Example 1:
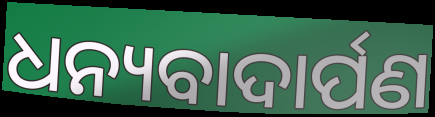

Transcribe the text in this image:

ଧନ୍ୟବାଦାର୍ପଣ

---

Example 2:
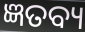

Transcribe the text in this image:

ଜ୍ଞତବ୍ୟ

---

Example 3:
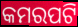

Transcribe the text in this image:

କମରପଟି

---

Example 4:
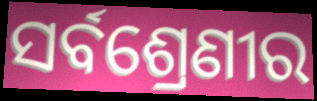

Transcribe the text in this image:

ସର୍ବଶ୍ରେଣୀର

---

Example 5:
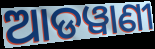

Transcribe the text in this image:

ଆଡୱାଣୀ